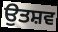
ਉਤਸ਼ਵ